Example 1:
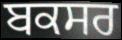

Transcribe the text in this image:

ਬਕਸਰ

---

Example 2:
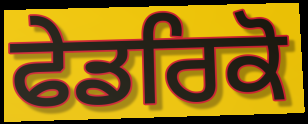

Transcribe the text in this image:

ਫੇਡਰਿਕੋ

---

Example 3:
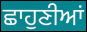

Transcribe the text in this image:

ਛਾਹੁਣੀਆਂ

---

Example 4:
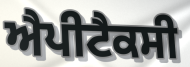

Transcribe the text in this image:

ਐਪੀਟੈਕਸੀ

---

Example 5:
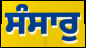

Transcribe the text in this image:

ਸੰਸਾਰੁ